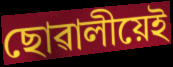
ছোৱালীয়েই